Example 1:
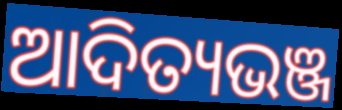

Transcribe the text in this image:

ଆଦିତ୍ୟଭଞ୍ଜ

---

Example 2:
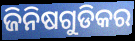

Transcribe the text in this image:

ଜିନିଷଗୁଡିକର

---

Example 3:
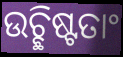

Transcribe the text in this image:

ଉଚ୍ଛିଷ୍ଟତାଂ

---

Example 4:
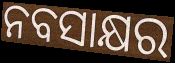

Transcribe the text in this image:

ନବସାକ୍ଷର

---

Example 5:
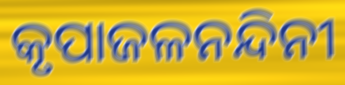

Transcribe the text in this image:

କୃପାଜଳନନ୍ଦିନୀ